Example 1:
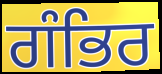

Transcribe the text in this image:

ਗੰਭਿਰ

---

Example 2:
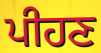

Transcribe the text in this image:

ਪੀਹਣ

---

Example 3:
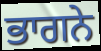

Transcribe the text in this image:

ਭਾਗਨੇ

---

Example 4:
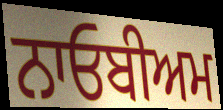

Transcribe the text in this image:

ਨਾਓਬੀਅਮ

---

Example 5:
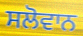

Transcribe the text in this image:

ਸਲੋਵਾਨ